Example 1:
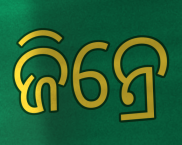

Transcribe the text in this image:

ଜିନ୍ରେ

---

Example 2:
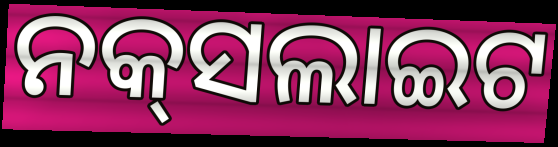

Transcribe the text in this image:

ନକ୍‌ସଲାଇଟ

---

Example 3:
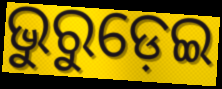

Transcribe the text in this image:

ଭୁରୁଡ଼େଇ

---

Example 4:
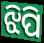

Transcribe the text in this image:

ଝିପି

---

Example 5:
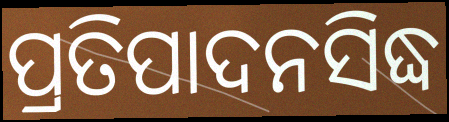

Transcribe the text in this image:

ପ୍ରତିପାଦନସିଦ୍ଧ